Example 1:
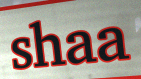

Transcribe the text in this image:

shaa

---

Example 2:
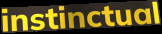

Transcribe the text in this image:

instinctual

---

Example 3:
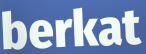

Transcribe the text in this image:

berkat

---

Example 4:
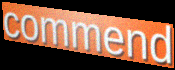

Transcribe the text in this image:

commend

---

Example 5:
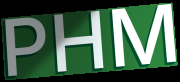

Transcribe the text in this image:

PHM